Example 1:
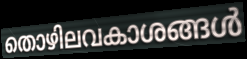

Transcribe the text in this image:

തൊഴിലവകാശങ്ങൾ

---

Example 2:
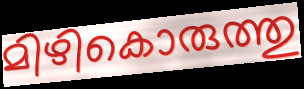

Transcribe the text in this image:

മിഴികൊരുത്തു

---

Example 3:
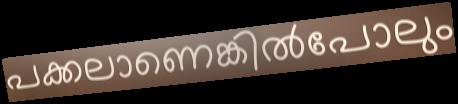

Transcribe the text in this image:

പക്കലാണെങ്കിൽപോലും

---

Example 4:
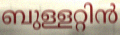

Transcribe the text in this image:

ബുള്ളറ്റിൻ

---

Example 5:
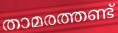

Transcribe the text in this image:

താമരത്തണ്ട്